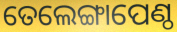
ତେଲେଙ୍ଗାପେଣ୍ଠ